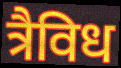
त्रैविध